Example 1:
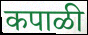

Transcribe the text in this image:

कपाळी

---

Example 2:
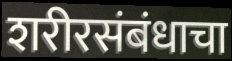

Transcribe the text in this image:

शरीरसंबंधाचा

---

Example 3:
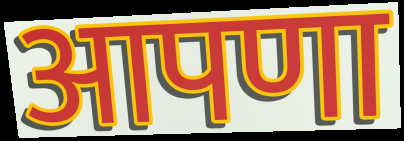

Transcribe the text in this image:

आपणा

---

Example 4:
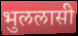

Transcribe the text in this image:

भुललासी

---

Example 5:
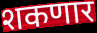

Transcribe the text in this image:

शकणार